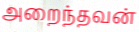
அறைந்தவன்